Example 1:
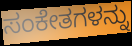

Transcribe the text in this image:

ಸಂಕೇತಗಳನ್ನು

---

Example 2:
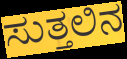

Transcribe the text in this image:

ಸುತ್ತಲಿನ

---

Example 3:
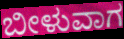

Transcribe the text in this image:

ಬೀಳುವಾಗ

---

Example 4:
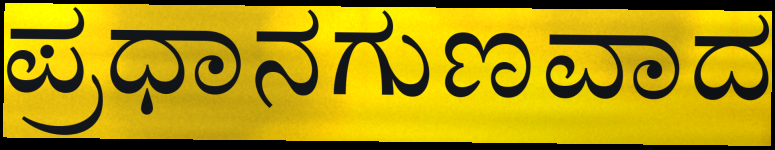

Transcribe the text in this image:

ಪ್ರಧಾನಗುಣವಾದ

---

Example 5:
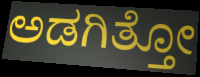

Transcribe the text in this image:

ಅಡಗಿತ್ತೋ